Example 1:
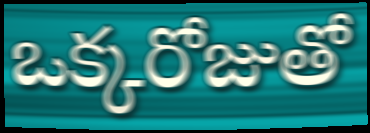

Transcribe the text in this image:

ఒక్కరోజుతో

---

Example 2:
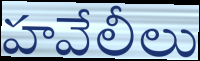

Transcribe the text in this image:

హవేలీలు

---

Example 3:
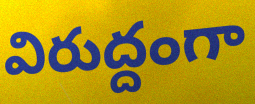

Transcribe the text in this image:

విరుద్దంగా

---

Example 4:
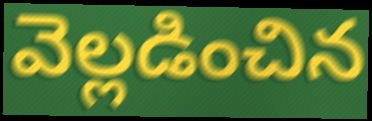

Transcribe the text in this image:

వెల్లడించిన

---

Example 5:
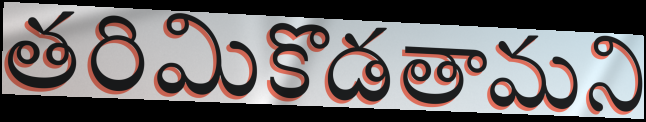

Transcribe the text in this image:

తరిమికొడతామని